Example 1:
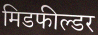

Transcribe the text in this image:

मिडफील्डर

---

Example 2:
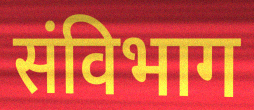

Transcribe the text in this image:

संविभाग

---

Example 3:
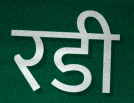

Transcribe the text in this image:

रडी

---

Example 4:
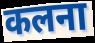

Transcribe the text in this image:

कलना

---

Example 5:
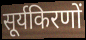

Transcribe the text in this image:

सूर्यकिरणों